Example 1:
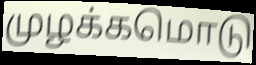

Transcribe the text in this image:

முழக்கமொடு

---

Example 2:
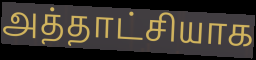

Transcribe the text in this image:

அத்தாட்சியாக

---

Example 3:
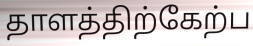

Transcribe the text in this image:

தாளத்திற்கேற்ப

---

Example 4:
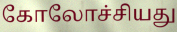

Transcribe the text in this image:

கோலோச்சியது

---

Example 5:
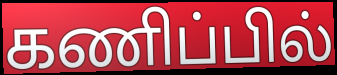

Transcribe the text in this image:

கணிப்பில்